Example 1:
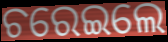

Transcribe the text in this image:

ଚରେଇଲେ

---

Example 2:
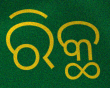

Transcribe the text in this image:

ରିକ୍ଥ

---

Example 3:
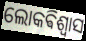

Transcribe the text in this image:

ଲୋକଵିଶ୍ଵାସ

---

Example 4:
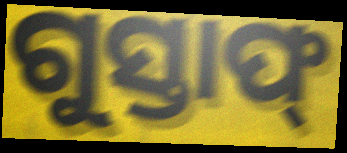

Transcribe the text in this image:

ଗୁସ୍ତାଫ୍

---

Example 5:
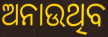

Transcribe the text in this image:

ଅନାଉଥିବ